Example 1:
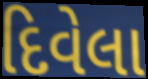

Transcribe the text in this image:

દિવેલા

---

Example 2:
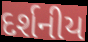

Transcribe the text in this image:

દર્શનીય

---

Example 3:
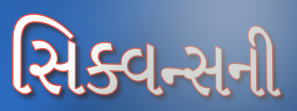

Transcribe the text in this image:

સિક્વન્સની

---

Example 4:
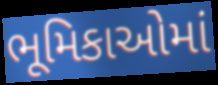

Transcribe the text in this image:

ભૂમિકાઓમાં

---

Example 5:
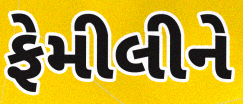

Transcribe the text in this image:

ફેમીલીને